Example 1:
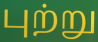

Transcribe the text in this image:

புற்று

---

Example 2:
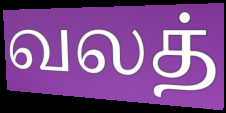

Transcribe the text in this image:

வலத்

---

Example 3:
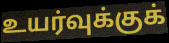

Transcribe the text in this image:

உயர்வுக்குக்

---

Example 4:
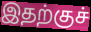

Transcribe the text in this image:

இதற்குச்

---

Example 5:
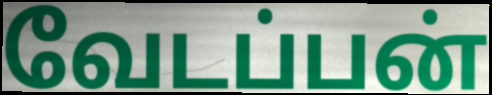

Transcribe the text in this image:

வேடப்பன்